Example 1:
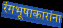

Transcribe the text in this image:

रंगभूषाकारांना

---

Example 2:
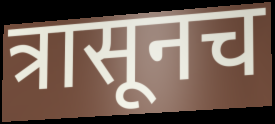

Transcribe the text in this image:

त्रासूनच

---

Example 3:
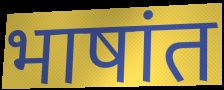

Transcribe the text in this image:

भाषांत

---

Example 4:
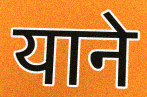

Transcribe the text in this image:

याने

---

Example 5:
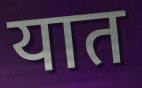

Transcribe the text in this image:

यात